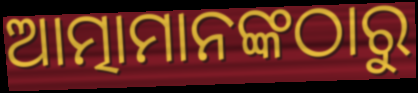
ଆତ୍ମାମାନଙ୍କଠାରୁ